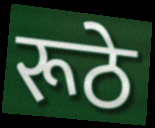
रूठे